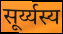
सूर्य्यस्य